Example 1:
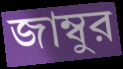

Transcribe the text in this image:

জাম্বুর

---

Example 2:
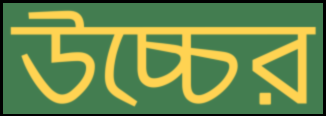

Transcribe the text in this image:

উচ্চের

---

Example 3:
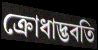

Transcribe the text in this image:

ক্রোধাদ্ভবতি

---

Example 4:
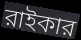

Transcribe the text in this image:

রাইকার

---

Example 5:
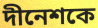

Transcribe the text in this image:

দীনেশকে